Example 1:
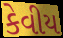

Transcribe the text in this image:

કેવીય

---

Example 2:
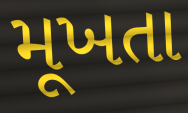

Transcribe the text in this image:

મૂખતા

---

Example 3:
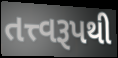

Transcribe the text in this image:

તત્ત્વરૂપથી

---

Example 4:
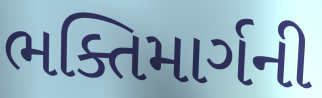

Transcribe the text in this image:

ભક્તિમાર્ગની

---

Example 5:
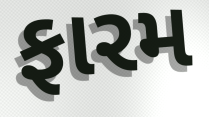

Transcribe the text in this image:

ફારમ